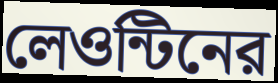
লেওন্টিনের